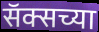
सॅक्सच्या